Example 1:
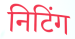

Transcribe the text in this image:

निटिंग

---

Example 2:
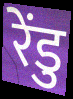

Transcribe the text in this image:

रेंडु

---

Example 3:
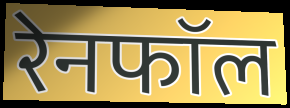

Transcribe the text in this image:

रेनफॉल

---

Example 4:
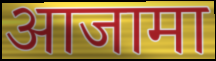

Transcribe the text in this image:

आजामा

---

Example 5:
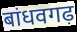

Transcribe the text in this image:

बांधवगढ़